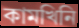
কামখিনি